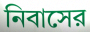
নিবাসের